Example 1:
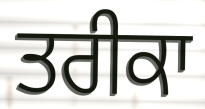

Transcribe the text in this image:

ਤਰੀਕਾ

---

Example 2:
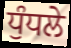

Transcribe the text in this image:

ਧੁੰਧਲੇ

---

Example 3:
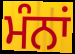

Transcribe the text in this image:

ਮੰਨਾਂ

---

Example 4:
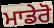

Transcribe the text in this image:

ਮਾਡੇਰੋ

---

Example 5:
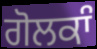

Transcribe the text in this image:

ਗੋਲਕਾੰ